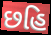
છહિ